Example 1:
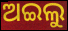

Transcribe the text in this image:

ଅଇଲୁ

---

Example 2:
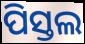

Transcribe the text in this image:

ପିସ୍ତଲ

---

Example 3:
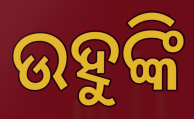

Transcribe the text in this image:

ଉହୁଙ୍କି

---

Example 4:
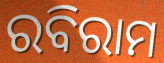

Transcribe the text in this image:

ରବିରାମ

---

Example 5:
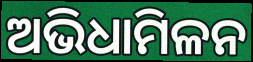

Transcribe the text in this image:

ଅଭିଧାମିଳନ